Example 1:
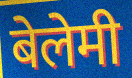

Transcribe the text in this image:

बेलेमी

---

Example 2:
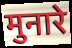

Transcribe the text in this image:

मुनारे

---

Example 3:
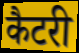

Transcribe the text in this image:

कैटरी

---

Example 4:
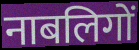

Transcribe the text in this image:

नाबलिगों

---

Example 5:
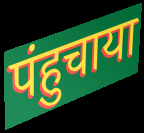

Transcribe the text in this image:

पंहुचाया